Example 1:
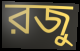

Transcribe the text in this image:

রজু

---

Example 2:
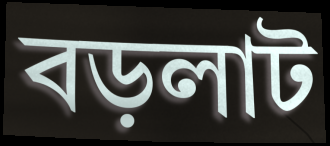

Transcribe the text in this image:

বড়লাট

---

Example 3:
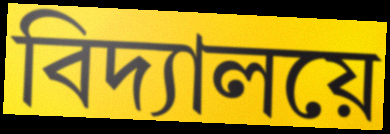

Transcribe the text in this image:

বিদ্যালয়ে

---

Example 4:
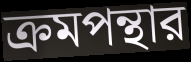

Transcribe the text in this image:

ক্রমপন্থার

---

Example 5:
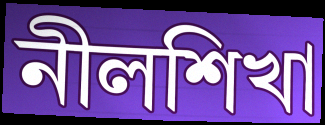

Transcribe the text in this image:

নীলশিখা